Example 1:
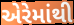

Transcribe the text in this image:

એરેમાંથી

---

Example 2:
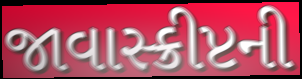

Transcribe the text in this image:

જાવાસ્ક્રીપ્ટની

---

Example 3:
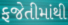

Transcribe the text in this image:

ફજેતીમાંથી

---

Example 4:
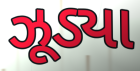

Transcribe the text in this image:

ઝૂડ્યા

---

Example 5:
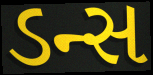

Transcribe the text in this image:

ડન્સ